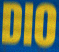
DIO